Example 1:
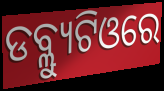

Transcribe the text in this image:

ଡବ୍ଲ୍ୟୁଟିଓରେ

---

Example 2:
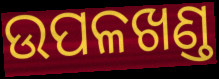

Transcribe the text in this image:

ଉପଳଖଣ୍ଡ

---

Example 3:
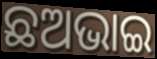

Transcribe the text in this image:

ଛଅଭାଇ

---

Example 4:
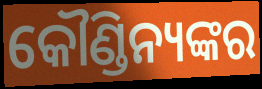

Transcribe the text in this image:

କୌଣ୍ଡିନ୍ୟଙ୍କର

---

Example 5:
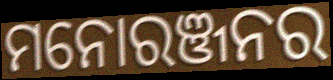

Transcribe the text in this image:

ମନୋରଞ୍ଜନର